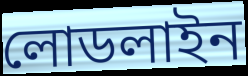
লোডলাইন